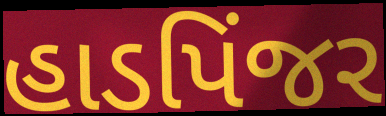
હાડપિંજર